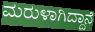
ಮರುಳಾಗಿದ್ದಾನೆ